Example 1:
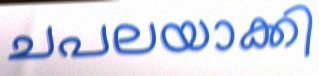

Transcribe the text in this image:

ചപലയാക്കി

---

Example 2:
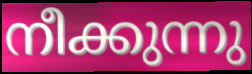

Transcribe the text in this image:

നീക്കുന്നു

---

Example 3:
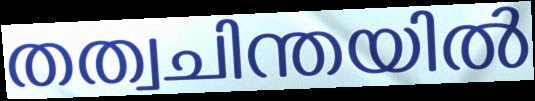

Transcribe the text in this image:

തത്വചിന്തയിൽ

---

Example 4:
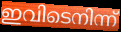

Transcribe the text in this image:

ഇവിടെനിന്ന്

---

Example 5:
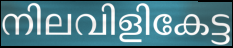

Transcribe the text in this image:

നിലവിളികേട്ട